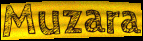
Muzara